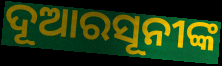
ଦୂଆରସୂନୀଙ୍କ